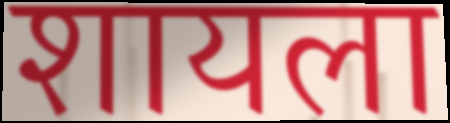
शायला